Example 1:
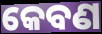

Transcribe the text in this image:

କେବଣ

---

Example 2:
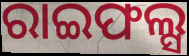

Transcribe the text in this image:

ରାଇଫଲ୍ସ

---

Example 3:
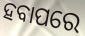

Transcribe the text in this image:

ହବାପରେ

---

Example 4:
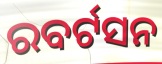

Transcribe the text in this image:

ରବର୍ଟସନ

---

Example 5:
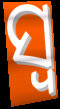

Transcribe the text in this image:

ସ୍ୱ